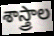
శాస్త్రాల